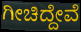
ಗೀಚಿದ್ದೇವೆ